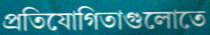
প্রতিযোগিতাগুলোতে